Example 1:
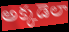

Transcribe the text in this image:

అక్కడెలా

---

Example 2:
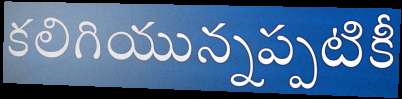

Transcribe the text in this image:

కలిగియున్నప్పటికీ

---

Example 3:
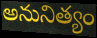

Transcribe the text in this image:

అనునిత్యం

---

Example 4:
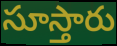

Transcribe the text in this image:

సూస్తారు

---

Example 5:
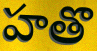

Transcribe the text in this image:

హతొ